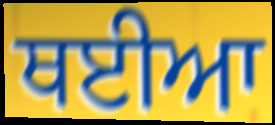
ਥਈਆ